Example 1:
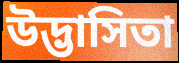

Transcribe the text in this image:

উদ্ভাসিতা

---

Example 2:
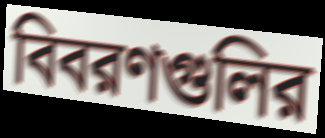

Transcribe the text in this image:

বিবরণগুলির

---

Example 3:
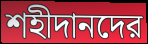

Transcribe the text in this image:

শহীদানদের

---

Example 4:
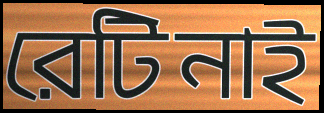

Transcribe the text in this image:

রেটিনাই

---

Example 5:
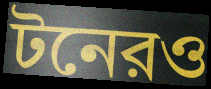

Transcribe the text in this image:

টনেরও